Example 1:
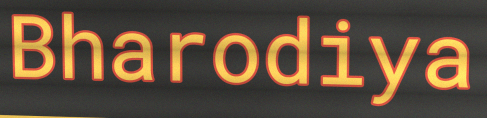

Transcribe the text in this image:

Bharodiya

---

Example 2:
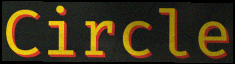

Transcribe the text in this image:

Circle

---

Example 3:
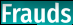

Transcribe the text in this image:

Frauds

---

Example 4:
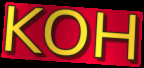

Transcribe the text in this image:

KOH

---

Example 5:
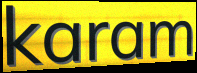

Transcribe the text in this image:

karam